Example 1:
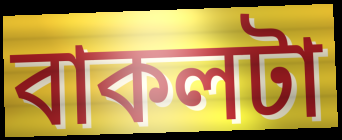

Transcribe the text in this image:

বাকলটা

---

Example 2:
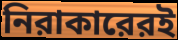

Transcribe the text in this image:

নিরাকারেরই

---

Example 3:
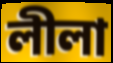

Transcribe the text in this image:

লীলা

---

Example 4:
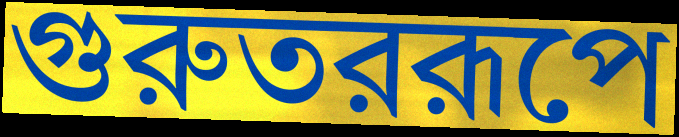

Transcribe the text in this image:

গুরুতররূপে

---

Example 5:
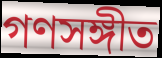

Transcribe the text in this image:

গণসঙ্গীত